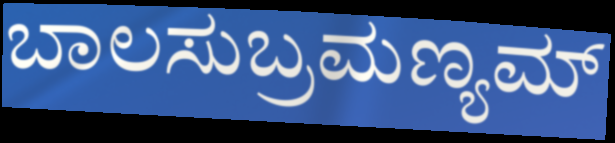
ಬಾಲಸುಬ್ರಮಣ್ಯಮ್